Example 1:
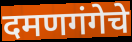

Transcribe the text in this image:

दमणगंगेचे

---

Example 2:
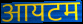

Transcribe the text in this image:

आयटम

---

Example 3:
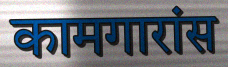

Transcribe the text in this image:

कामगारांस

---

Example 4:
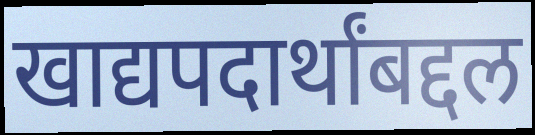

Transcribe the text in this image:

खाद्यपदार्थांबद्दल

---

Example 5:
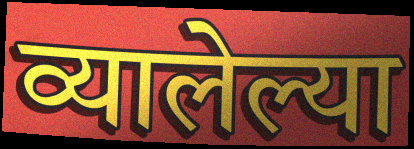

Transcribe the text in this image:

व्यालेल्या